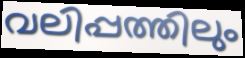
വലിപ്പത്തിലും